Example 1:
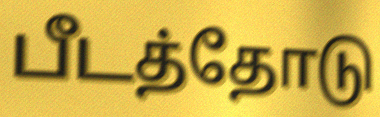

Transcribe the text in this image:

பீடத்தோடு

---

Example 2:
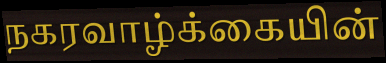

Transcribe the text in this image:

நகரவாழ்க்கையின்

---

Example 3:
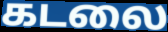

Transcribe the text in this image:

கடலை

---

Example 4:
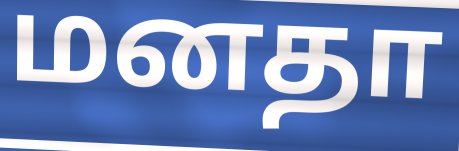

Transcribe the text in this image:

மனதா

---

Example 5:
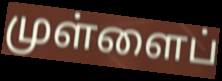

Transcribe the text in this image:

முள்ளைப்